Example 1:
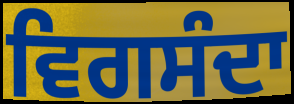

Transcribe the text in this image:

ਵਿਗਸੰਦਾ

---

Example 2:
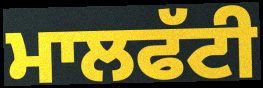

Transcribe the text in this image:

ਮਾਲਫੱਟੀ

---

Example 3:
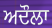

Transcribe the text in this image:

ਅਦੌਲਾ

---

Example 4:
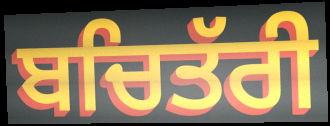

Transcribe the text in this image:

ਬਚਿਤੱਰੀ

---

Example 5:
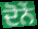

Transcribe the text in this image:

ਦੋਨੇਂ